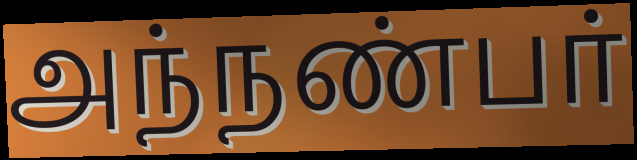
அந்நண்பர்